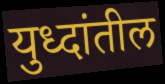
युध्दांतील